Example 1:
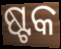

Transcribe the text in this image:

ଷ୍ଟକ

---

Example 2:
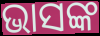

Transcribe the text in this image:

ଭାସଙ୍କ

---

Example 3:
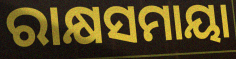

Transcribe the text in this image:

ରାକ୍ଷସମାୟା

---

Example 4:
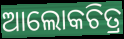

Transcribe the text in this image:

ଆଲୋକଚିତ୍ର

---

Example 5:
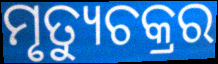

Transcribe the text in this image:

ମୃତ୍ୟୁଚକ୍ରର